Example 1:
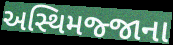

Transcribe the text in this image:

અસ્થિમજ્જાના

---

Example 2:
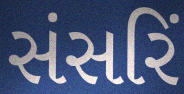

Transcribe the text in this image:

સંસરિં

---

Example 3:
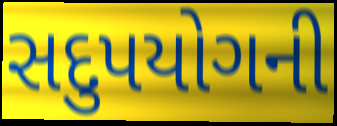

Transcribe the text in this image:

સદુપયોગની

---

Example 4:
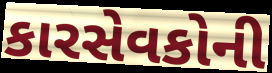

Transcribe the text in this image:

કારસેવકોની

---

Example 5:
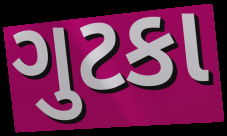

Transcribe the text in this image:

ગુટકા